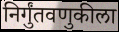
निर्गुंतवणुकीला